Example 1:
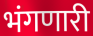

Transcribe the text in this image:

भंगणारी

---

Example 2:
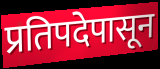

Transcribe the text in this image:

प्रतिपदेपासून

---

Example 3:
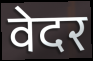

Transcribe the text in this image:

वेदर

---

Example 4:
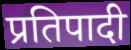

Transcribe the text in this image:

प्रतिपादी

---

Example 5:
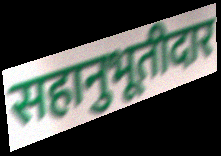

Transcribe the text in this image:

सहानुभूतीदार